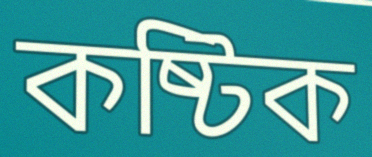
কষ্টিক